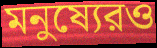
মনুষ্যেরও